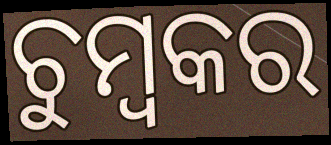
ଚୁମ୍ବକର